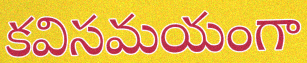
కవిసమయంగా